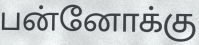
பன்னோக்கு